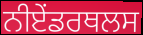
ਨੀਏਂਡਰਥਲਸ